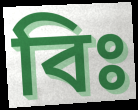
বিঃ